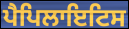
ਪੈਪਿਲਾਇਟਿਸ